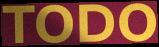
TODO